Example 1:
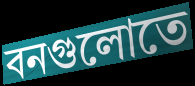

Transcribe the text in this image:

বনগুলোতে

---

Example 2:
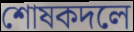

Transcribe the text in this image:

শোষকদলে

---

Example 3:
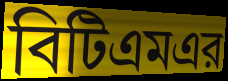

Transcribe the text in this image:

বিটিএমএর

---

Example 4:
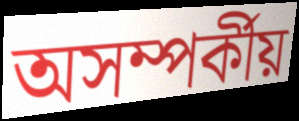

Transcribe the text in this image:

অসম্পর্কীয়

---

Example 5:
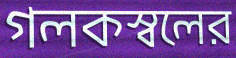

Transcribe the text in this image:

গলকস্বলের